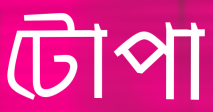
টোপা